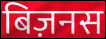
बिज़नस